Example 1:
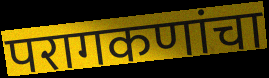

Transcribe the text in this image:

परागकणांचा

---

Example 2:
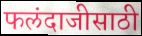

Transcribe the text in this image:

फलंदाजीसाठी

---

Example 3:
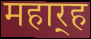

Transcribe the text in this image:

महार्ह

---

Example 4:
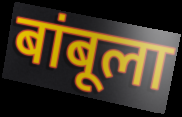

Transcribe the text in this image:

बांबूला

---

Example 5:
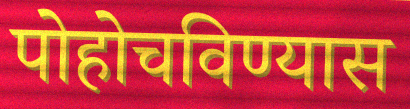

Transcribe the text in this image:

पोहोचविण्यास